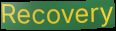
Recovery